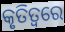
କୃତିତ୍ୱରେ